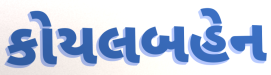
કોયલબહેન